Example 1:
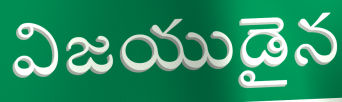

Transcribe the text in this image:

విజయుడైన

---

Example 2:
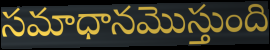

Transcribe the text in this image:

సమాధానమొస్తుంది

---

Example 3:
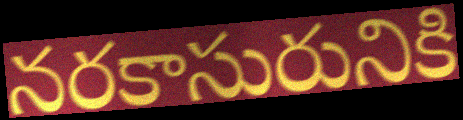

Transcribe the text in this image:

నరకాసురునికి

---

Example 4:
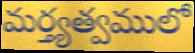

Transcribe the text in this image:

మర్త్యత్వములో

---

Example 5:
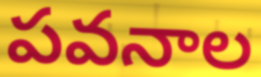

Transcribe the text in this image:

పవనాల